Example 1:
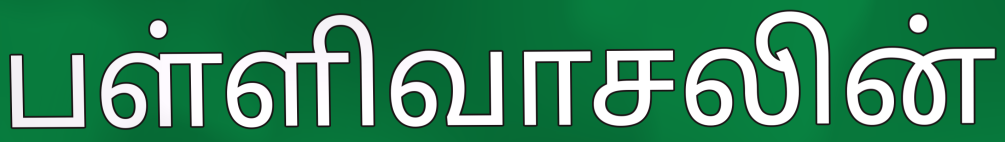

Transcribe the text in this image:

பள்ளிவாசலின்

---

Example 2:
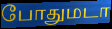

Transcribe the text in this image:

போதுமடா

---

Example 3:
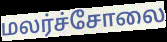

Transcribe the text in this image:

மலர்ச்சோலை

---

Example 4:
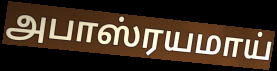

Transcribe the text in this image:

அபாஸ்ரயமாய்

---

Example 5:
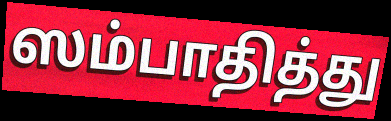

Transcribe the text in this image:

ஸம்பாதித்து